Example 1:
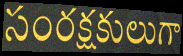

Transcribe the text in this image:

సంరక్షకులుగా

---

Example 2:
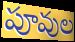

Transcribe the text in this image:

పూవుల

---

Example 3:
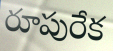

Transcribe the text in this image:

రూపురేక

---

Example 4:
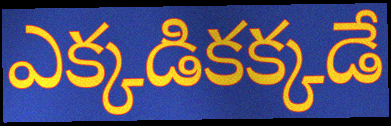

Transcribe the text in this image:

ఎక్కడికక్కడే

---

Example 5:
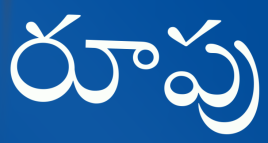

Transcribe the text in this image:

రూపు